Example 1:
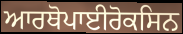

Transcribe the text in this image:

ਆਰਥੋਪਾਈਰੋਕਸਿਨ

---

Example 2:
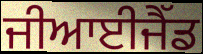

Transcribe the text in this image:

ਜੀਆਈਜੈੱਡ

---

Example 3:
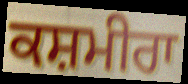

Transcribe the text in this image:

ਕਸ਼ਮੀਰਾ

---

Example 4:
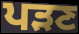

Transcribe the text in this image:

ਪੜਣ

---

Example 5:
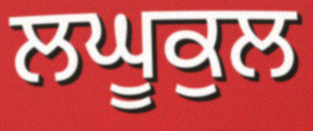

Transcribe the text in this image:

ਲਘੂਕੁਲ